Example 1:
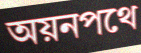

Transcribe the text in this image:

অয়নপথে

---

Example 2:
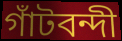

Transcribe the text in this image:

গাঁটবন্দী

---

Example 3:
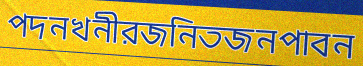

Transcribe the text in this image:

পদনখনীরজনিতজনপাবন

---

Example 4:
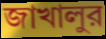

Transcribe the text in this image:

জাখালুর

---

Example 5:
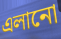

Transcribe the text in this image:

এলানো